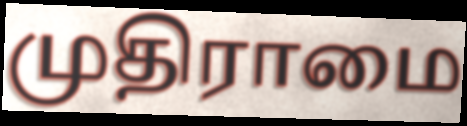
முதிராமை